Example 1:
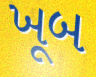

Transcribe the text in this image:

ખૂબ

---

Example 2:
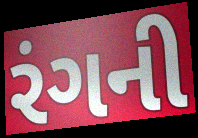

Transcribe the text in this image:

રંગની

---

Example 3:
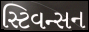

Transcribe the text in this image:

સ્ટિવન્સન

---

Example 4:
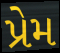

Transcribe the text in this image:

પ્રેમ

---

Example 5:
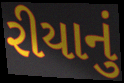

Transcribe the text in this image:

રીયાનું